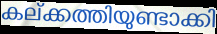
കല്ക്കത്തിയുണ്ടാക്കി